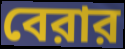
বেরার